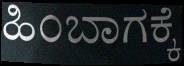
ಹಿಂಬಾಗಕ್ಕೆ